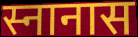
स्नानास